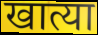
खात्या